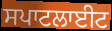
ਸਪਾਟਲਾਈਟ